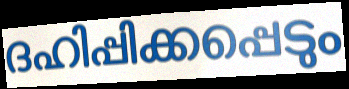
ദഹിപ്പിക്കപ്പെടും